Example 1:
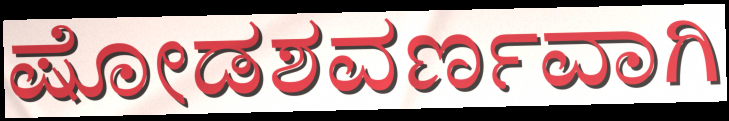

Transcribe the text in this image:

ಷೋಡಶವರ್ಣವಾಗಿ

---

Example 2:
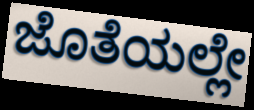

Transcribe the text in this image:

ಜೊತೆಯಲ್ಲೇ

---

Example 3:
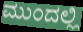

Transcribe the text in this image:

ಮುಂದಲ್ಲಿ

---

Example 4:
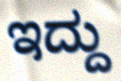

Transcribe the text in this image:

ಇದ್ದು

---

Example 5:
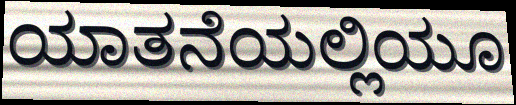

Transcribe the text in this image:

ಯಾತನೆಯಲ್ಲಿಯೂ